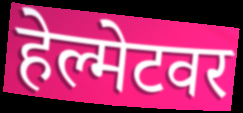
हेल्मेटवर